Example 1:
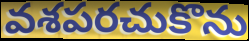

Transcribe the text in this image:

వశపరచుకొను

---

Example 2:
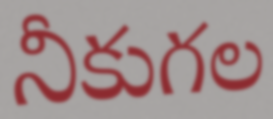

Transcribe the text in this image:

నీకుగల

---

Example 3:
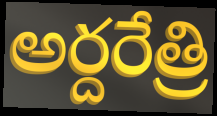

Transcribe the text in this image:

అర్దరేత్రి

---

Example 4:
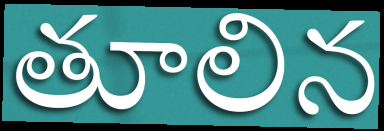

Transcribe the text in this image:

తూలిన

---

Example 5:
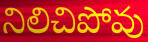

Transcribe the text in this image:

నిలిచిపోవు